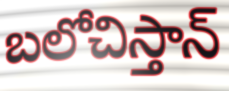
బలోచిస్తాన్